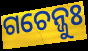
ଗଚେନ୍ଜୁଃ